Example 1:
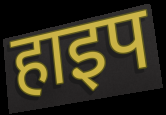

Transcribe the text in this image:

हाइप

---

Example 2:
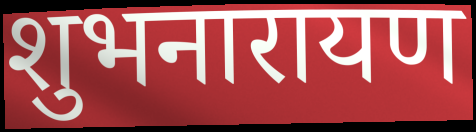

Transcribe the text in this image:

शुभनारायण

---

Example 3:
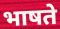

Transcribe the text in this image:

भाषते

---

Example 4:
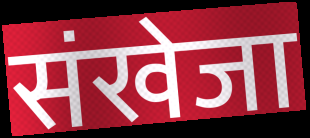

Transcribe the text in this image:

संखेजा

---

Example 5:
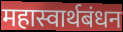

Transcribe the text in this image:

महास्वार्थबंधन